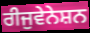
ਰੀਜੁਵੇਨੇਸ਼ਨ